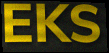
EKS